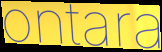
ontara